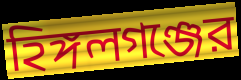
হিঙ্গলগঞ্জের